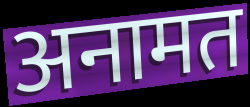
अनामत